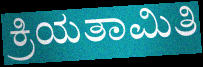
ಕ್ರಿಯತಾಮಿತಿ